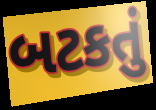
બટકતું